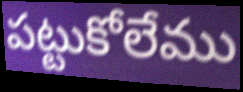
పట్టుకోలేము